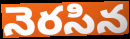
నెరసిన